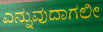
ಎನ್ನುವುದಾಗಲೀ